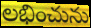
లభించును